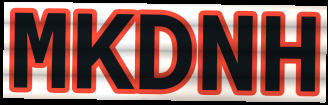
MKDNH